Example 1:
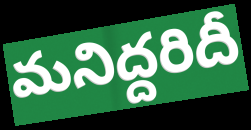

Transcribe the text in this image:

మనిద్దరిదీ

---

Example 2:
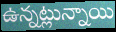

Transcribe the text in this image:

ఉన్నట్లున్నాయి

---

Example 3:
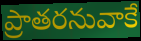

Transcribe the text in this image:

ప్రాతరనువాకే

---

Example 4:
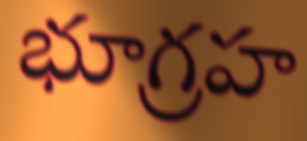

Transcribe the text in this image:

భూగ్రహ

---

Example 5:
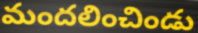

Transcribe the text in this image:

మందలించిండు